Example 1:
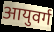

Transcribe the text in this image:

आयुवर्ग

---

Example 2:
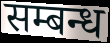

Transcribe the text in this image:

सम्बन्ध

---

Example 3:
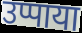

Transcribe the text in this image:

उप्पाया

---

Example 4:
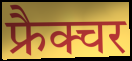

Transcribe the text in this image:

फ्रैक्चर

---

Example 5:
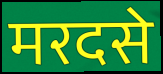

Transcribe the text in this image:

मरदसे